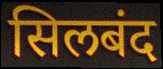
सिलबंद